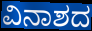
ವಿನಾಶದ